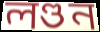
লণ্ডন